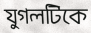
যুগলটিকে